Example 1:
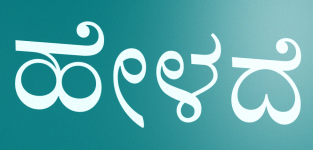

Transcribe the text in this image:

ಹೇಳದೆ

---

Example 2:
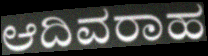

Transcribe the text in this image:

ಆದಿವರಾಹ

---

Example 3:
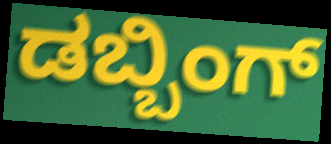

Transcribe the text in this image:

ಡಬ್ಬಿಂಗ್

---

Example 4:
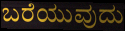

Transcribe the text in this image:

ಬರೆಯುವುದು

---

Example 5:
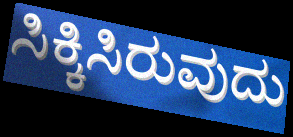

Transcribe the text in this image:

ಸಿಕ್ಕಿಸಿರುವುದು